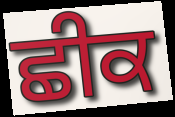
ਛੀਕ